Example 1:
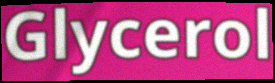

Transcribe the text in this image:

Glycerol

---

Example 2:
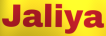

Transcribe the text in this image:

Jaliya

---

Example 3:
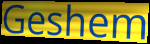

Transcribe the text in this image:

Geshem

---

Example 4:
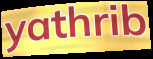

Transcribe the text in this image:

yathrib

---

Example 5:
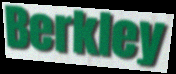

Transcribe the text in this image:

Berkley